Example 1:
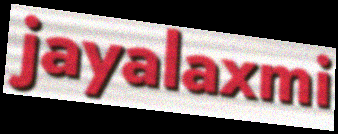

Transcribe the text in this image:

jayalaxmi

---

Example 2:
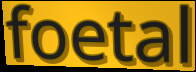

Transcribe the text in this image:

foetal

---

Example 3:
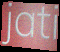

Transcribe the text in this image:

jati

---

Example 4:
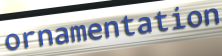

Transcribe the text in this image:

ornamentation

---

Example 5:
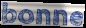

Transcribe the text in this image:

bonne